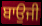
ਬਾਉਜੀ